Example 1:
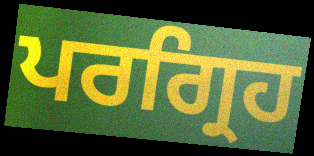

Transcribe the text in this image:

ਪਰਗ੍ਰਿਹ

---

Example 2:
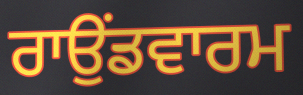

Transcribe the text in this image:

ਰਾਉਂਡਵਾਰਮ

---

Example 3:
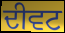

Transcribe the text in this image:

ਦੀਵਟ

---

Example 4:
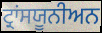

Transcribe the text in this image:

ਟ੍ਰਾਂਸਯੂਨੀਅਨ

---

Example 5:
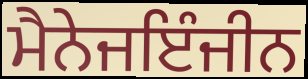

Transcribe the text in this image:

ਮੈਨੇਜਇੰਜੀਨ